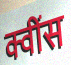
क्वींस